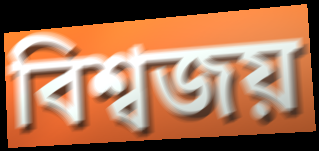
বিশ্বজয়